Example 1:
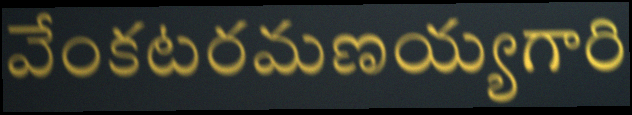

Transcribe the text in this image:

వేంకటరమణయ్యగారి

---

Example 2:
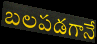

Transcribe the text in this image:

బలపడగానే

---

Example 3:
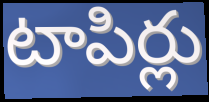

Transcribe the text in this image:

టాపిర్లు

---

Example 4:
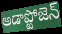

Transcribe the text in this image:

అడాప్టోజెన్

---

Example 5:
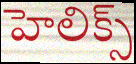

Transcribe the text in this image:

హెలిక్స్